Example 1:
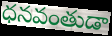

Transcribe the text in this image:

ధనవంతుడా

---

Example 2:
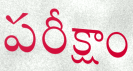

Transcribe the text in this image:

పరీక్షాం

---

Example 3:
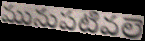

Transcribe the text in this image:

మునుపటివలె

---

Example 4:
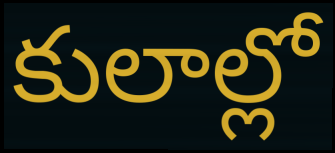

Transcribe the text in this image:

కులాల్లో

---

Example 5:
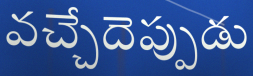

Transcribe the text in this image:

వచ్చేదెప్పుడు